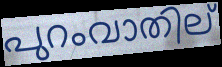
പുറംവാതില്